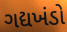
ગદ્યખંડો